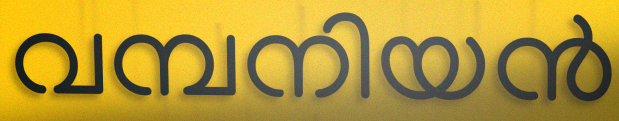
വമ്പനിയൻ